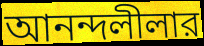
আনন্দলীলার